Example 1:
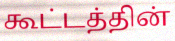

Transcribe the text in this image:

கூட்டத்தின்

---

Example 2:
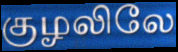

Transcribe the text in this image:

குழலிலே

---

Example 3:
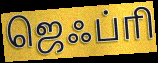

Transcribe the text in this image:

ஜெஃப்ரி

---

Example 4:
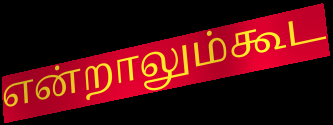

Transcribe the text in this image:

என்றாலும்கூட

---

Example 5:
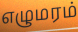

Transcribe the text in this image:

எழுமரம்